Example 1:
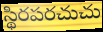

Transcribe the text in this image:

స్థిరపరచుచు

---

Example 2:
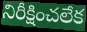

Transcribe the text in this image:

నిరీక్షించలేక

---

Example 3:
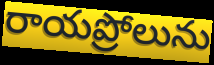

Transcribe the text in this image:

రాయప్రోలును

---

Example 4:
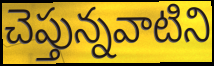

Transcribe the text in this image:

చెప్తున్నవాటిని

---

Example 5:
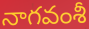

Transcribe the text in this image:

నాగవంశీ